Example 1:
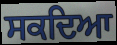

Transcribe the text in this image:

ਸਕਦਿਆ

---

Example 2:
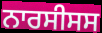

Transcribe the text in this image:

ਨਾਰਸੀਸਸ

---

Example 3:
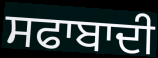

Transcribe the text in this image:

ਸਫਾਬਾਦੀ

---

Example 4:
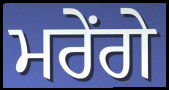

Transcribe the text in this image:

ਮਰੇਂਗੇ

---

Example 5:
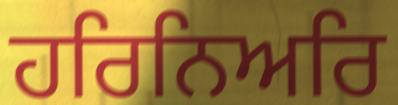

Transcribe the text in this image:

ਹਰਿਨਿਅਰਿ